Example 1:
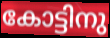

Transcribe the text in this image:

കോട്ടിനു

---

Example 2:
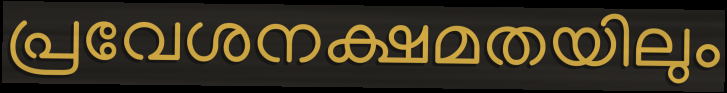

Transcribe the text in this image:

പ്രവേശനക്ഷമതയിലും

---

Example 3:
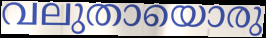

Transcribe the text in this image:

വലുതായൊരു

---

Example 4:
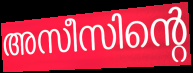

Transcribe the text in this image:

അസീസിന്റെ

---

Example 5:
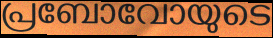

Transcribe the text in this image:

പ്രബോവോയുടെ